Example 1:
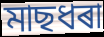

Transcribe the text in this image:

মাছধৰা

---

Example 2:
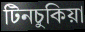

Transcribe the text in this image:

টিনচুকিয়া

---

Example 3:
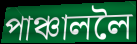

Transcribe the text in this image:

পাঞ্চাললৈ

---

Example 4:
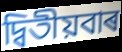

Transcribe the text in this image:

দ্বিতীয়বাৰ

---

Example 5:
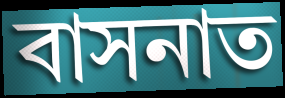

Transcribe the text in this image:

বাসনাত